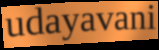
udayavani